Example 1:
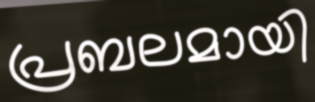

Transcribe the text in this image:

പ്രബലമായി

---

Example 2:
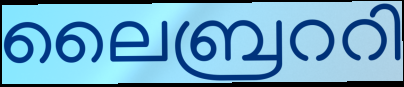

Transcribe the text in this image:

ലൈബ്രററി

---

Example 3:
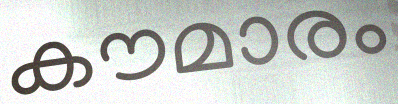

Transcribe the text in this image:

കൗമാരം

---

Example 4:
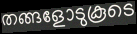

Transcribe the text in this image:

തങ്ങളോടുകൂടെ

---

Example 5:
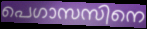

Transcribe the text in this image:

പെഗാസസിനെ